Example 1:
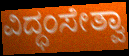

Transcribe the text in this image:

ವಿದ್ಧಂಸೇತ್ವಾ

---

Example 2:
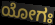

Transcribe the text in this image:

ಯೋಗಃ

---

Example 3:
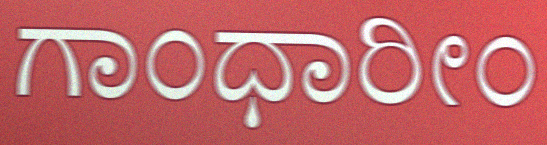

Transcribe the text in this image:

ಗಾಂಧಾರೀಂ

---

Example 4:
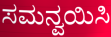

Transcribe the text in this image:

ಸಮನ್ವಯಿಸಿ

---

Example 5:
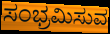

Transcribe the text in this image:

ಸಂಭ್ರಮಿಸುವ